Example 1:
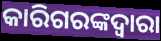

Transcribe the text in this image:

କାରିଗରଙ୍କଦ୍ୱାରା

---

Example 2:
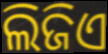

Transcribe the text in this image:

ଲିଜିଏ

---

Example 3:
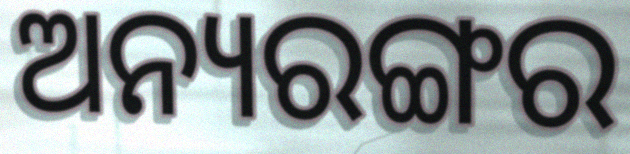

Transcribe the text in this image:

ଅନ୍ୟରଙ୍ଗର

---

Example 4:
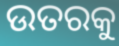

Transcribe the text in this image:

ଉତରକୁ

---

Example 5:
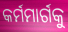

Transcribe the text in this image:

କର୍ମମାର୍ଗକୁ